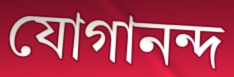
যোগানন্দ